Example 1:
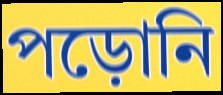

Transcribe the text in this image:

পড়োনি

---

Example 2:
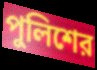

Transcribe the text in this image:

পুলিশের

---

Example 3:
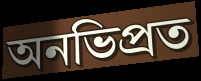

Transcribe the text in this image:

অনভিপ্রত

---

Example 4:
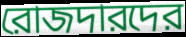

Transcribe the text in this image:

রোজদারদের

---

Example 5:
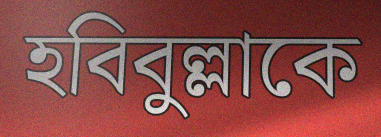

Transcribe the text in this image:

হবিবুল্লাকে